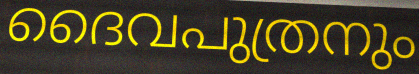
ദൈവപുത്രനും